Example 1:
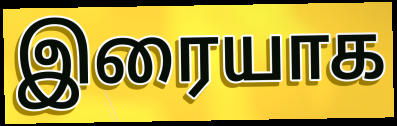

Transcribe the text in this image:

இரையாக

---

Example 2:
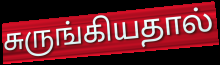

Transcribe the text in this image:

சுருங்கியதால்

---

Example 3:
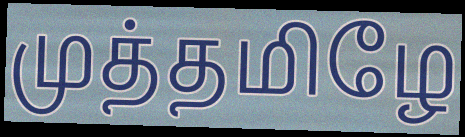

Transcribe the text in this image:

முத்தமிழே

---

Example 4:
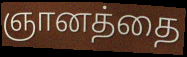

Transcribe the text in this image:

ஞானத்தை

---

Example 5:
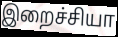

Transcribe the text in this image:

இறைச்சியா